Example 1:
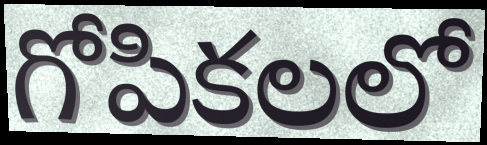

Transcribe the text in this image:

గోపికలలో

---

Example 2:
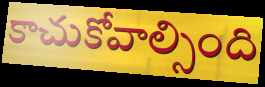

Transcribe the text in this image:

కాచుకోవాల్సింది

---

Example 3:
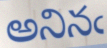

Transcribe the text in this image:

అనినఁ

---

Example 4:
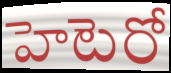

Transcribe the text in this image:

హెటెరో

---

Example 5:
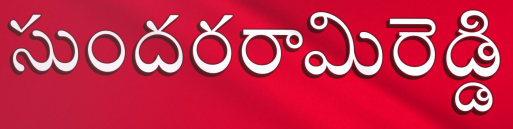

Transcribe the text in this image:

సుందరరామిరెడ్డి